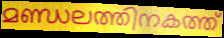
മണ്ഡലത്തിനകത്ത്